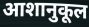
आशानुकूल